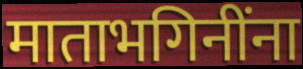
माताभगिनींना